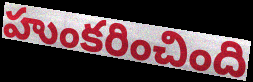
హుంకరించింది